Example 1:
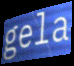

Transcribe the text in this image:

gela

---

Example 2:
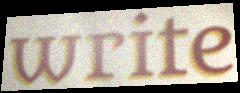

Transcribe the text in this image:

write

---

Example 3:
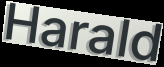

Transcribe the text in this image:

Harald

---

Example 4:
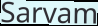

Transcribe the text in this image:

Sarvam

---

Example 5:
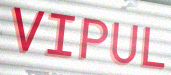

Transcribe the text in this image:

VIPUL